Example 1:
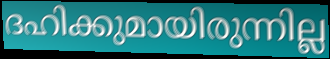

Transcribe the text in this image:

ദഹിക്കുമായിരുന്നില്ല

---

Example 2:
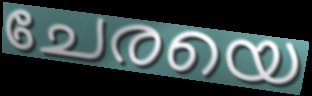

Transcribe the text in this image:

ചേരയെ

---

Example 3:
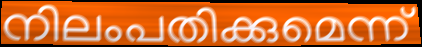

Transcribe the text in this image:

നിലംപതിക്കുമെന്ന്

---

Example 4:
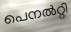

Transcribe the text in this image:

പെനൽറ്റി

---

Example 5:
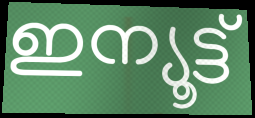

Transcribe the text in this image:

ഇന്യൂട്ട്